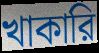
খাকারি